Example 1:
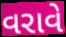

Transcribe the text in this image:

વરાવે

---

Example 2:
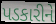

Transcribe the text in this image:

પડકારીને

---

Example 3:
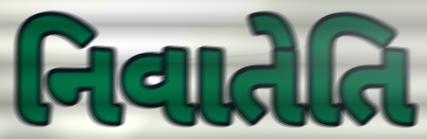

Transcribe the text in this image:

નિવાતેતિ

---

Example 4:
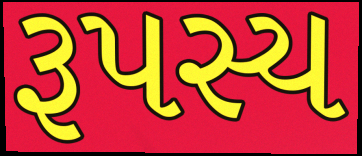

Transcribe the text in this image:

રૂપસ્ય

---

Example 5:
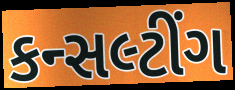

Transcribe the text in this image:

કન્સલ્ટીંગ